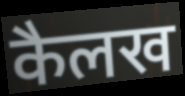
कैलख